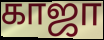
காஜா